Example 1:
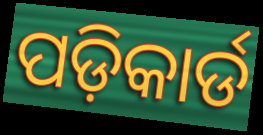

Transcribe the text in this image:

ପଡ଼ିକାର୍ଡ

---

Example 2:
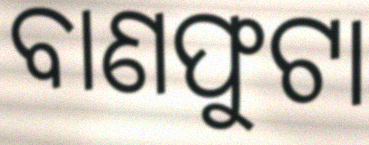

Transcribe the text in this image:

ବାଣଫୁଟା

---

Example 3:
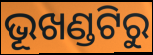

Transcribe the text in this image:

ଭୂଖଣ୍ଡଟିରୁ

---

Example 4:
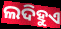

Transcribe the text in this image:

ଲଦିହୁଏ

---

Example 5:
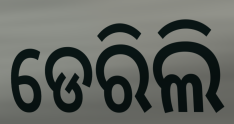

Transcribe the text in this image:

ଡେରିଲି